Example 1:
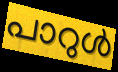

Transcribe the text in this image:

പാറുൾ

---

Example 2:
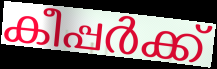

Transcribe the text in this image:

കീപ്പർക്ക്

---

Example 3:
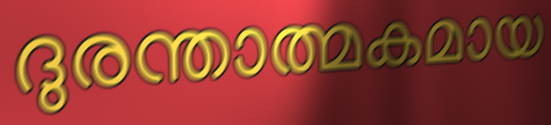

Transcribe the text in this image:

ദുരന്താത്മകമായ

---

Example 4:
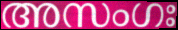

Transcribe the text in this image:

അസംഗഃ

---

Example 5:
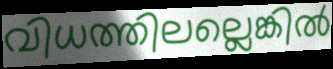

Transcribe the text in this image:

വിധത്തിലല്ലെങ്കിൽ